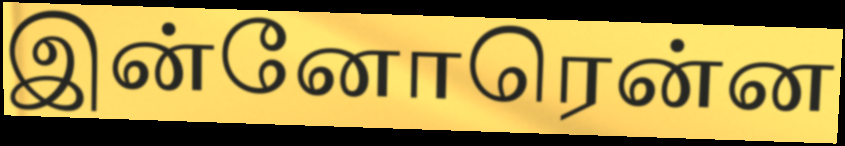
இன்னோரென்ன